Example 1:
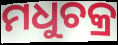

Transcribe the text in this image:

ମଧୁଚକ୍ର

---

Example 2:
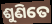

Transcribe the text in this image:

ଶୁଣିତେ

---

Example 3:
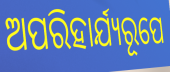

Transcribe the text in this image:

ଅପରିହାର୍ଯ୍ୟରୂପେ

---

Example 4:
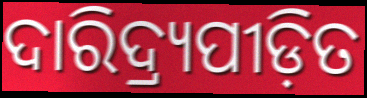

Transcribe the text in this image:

ଦାରିଦ୍ର୍ୟପୀଡ଼ିତ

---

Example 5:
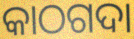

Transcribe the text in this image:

କାଠଗଦା